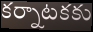
కర్నాటకకు